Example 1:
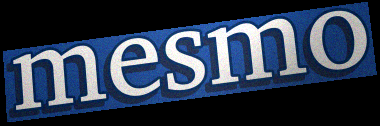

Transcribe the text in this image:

mesmo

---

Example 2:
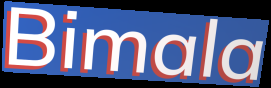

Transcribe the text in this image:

Bimala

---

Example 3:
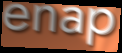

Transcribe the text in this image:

enap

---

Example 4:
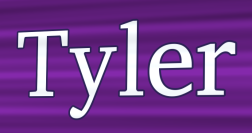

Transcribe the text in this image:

Tyler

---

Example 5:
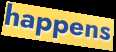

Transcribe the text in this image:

happens